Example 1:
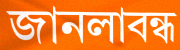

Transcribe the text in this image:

জানলাবন্ধ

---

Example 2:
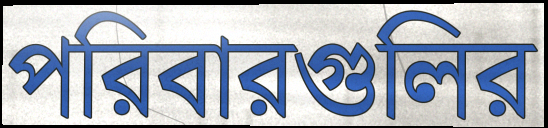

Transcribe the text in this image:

পরিবারগুলির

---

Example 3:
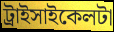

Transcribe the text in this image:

ট্রাইসাইকেলটা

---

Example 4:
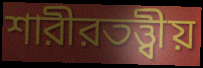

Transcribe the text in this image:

শারীরতত্ত্বীয়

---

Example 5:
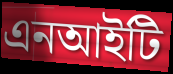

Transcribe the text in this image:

এনআইটি